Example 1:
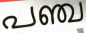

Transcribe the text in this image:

പഞ്ച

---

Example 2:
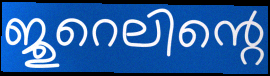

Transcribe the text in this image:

ജുറെലിന്റെ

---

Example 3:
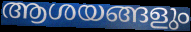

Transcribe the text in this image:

ആശയങ്ങളും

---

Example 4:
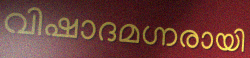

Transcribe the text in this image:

വിഷാദമഗ്നരായി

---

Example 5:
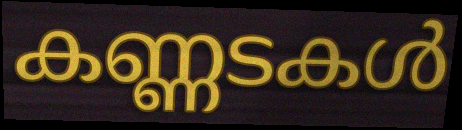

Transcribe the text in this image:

കണ്ണടകൾ